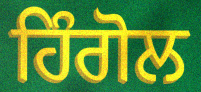
ਹਿੰਗੋਲ